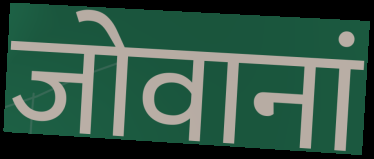
जोवानां